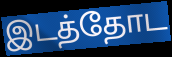
இடத்தோட